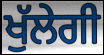
ਖੁੱਲੇਗੀ